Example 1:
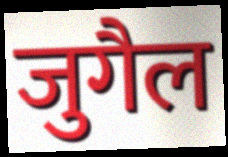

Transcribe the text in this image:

जुगैल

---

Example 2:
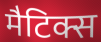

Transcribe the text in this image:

मैटिक्स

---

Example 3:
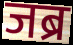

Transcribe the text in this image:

जब्र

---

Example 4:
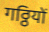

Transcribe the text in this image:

गठ्ठियों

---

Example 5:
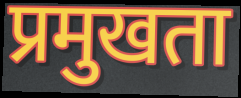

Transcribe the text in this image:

प्रमुखता